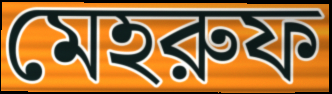
মেহরুফ